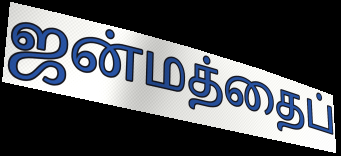
ஜன்மத்தைப்